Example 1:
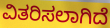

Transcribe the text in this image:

ವಿತರಿಸಲಾಗಿದೆ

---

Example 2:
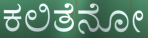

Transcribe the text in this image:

ಕಲಿತೆನೋ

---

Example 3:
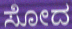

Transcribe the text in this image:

ಸೋದ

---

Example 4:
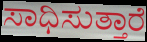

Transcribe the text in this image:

ಸಾಧಿಸುತ್ತಾರೆ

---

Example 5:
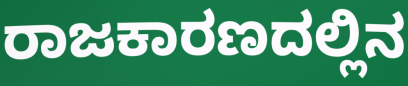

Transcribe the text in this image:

ರಾಜಕಾರಣದಲ್ಲಿನ